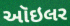
ઑઇલર